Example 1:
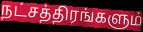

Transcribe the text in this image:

நட்சத்திரங்களும்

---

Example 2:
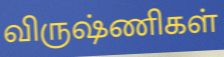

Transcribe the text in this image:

விருஷ்ணிகள்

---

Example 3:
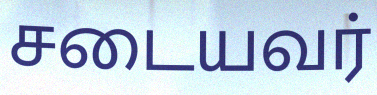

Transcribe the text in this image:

சடையவர்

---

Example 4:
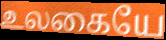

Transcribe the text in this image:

உலகையே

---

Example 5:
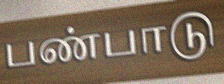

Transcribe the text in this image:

பண்பாடு